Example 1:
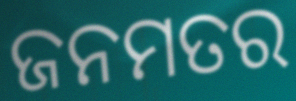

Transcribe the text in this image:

ଜନମତର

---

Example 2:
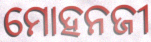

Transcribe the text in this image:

ମୋହନଜୀ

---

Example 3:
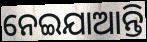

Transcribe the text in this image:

ନେଇଯାଆନ୍ତି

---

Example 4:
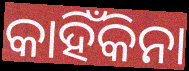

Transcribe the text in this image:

କାହିଁକିନା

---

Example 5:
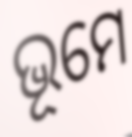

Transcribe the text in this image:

ଭୂମେ